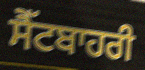
ਸੈੱਟਬਾਹਰੀ